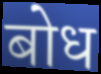
बोध